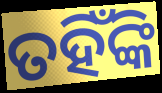
ତହିଁଙ୍କି